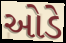
ઓડે